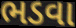
ભડવા